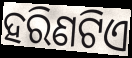
ହରିଣଟିଏ